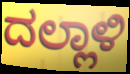
ದಲ್ಲಾಳಿ